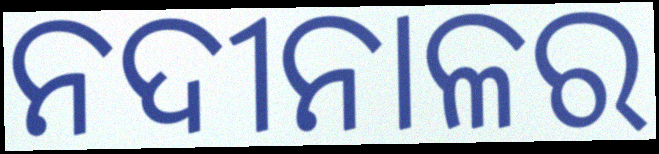
ନଦୀନାଳର